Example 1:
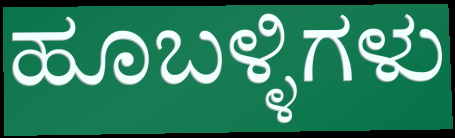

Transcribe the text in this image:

ಹೂಬಳ್ಳಿಗಳು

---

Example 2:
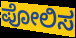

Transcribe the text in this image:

ಪೋಲಿಸ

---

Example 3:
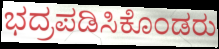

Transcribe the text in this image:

ಭದ್ರಪಡಿಸಿಕೊಂಡರು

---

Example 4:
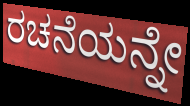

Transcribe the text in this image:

ರಚನೆಯನ್ನೇ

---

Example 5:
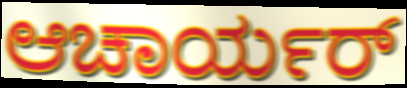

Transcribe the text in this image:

ಆಚಾರ್ಯರ್